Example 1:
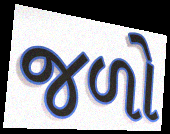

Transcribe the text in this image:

જળો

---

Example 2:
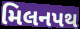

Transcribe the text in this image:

મિલનપથ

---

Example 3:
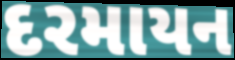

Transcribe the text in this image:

દરમાયન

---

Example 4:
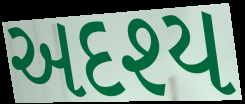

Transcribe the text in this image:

અદશ્ય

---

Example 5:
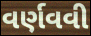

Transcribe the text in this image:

વર્ણવવી